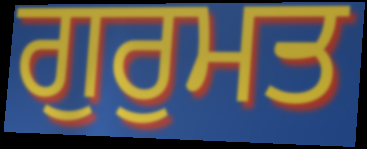
ਗੁਰੁਮਤ